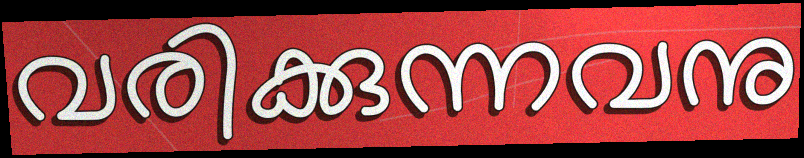
വരിക്കുന്നവനു